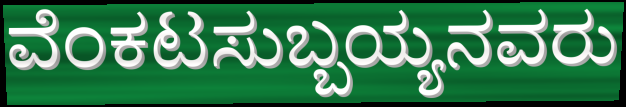
ವೆಂಕಟಸುಬ್ಬಯ್ಯನವರು